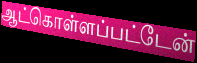
ஆட்கொள்ளப்பட்டேன்